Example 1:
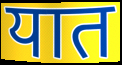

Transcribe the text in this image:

यात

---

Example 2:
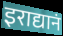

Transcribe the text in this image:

इराद्यानं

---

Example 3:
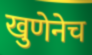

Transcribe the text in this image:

खुणेनेच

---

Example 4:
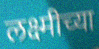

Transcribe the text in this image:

लक्ष्मीच्या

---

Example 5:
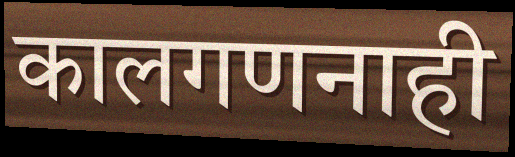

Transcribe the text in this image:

कालगणनाही